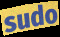
sudo